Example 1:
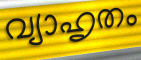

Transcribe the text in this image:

വ്യാഹൃതം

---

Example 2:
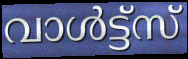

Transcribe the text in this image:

വാൾട്ട്സ്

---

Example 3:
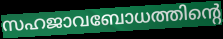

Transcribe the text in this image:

സഹജാവബോധത്തിന്റെ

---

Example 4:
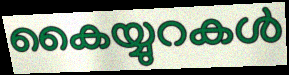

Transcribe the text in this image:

കൈയ്യുറകൾ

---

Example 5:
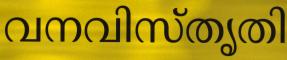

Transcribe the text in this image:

വനവിസ്തൃതി